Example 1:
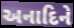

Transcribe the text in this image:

અનાદિને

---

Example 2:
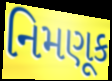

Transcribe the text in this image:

નિમણૂક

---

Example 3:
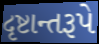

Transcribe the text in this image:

દૃષ્ટાન્તરૂપે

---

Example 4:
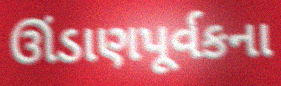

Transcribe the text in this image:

ઊંડાણપૂર્વકના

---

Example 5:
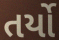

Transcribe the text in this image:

તર્યો